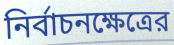
নির্বাচনক্ষেত্রের